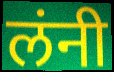
लंनी